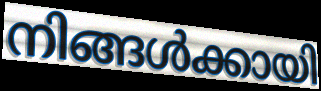
നിങ്ങൾക്കായി